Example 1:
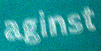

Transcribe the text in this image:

aginst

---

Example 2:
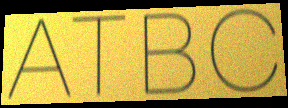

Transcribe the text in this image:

ATBC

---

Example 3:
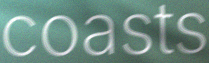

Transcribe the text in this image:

coasts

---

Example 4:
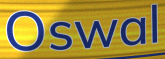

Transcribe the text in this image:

Oswal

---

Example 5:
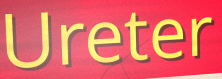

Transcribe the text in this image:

Ureter